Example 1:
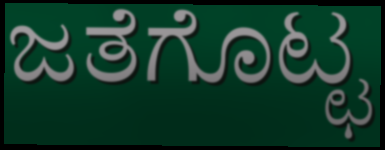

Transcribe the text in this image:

ಜತೆಗೊಟ್ಟ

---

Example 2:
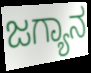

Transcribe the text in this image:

ಜಗ್ಯಾನ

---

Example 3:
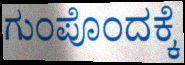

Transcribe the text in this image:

ಗುಂಪೊಂದಕ್ಕೆ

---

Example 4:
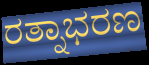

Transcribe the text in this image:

ರತ್ನಾಭರಣ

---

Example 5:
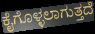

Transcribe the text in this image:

ಕೈಗೊಳ್ಳಲಾಗುತ್ತದೆ